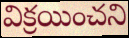
విక్రయించని